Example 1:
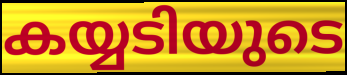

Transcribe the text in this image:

കയ്യടിയുടെ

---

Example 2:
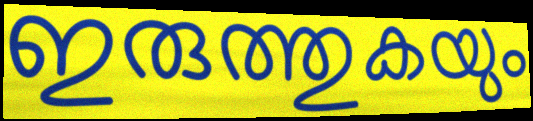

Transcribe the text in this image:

ഇരുത്തുകയും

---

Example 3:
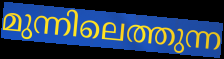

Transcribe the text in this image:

മുന്നിലെത്തുന്ന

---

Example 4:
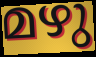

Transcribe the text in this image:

മഴു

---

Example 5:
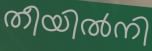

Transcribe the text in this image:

തീയിൽനി